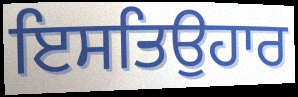
ਇਸਤਿਉਹਾਰ